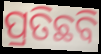
ପ୍ରତିଛବି